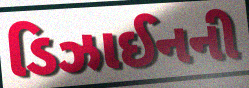
ડિઝાઈનની